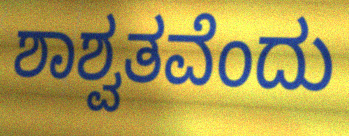
ಶಾಶ್ವತವೆಂದು